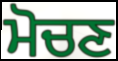
ਮੋਚਣ